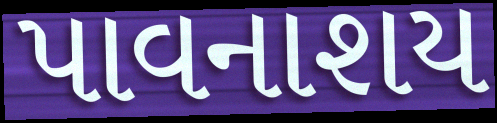
પાવનાશય